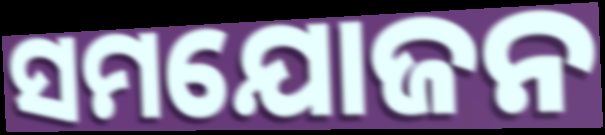
ସମଯୋଜନ